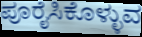
ಪೂರೈಸಿಕೊಳ್ಳುವ